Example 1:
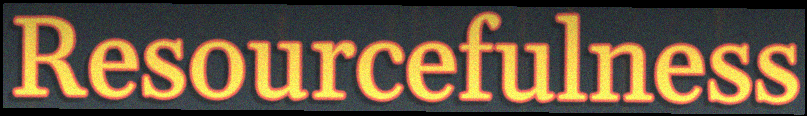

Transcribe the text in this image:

Resourcefulness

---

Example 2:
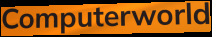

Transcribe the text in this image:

Computerworld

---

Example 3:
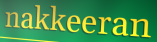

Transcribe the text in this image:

nakkeeran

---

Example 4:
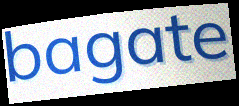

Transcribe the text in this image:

bagate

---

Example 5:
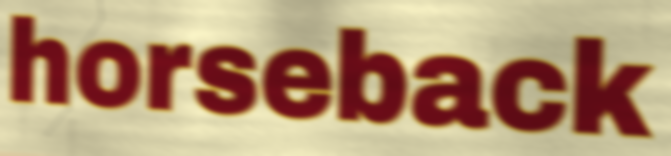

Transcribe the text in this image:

horseback